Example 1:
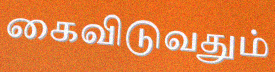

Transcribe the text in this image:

கைவிடுவதும்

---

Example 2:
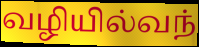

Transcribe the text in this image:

வழியில்வந்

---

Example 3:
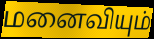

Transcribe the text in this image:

மனைவியும்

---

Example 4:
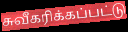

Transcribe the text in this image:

சுவீகரிக்கப்பட்டு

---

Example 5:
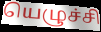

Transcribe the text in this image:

யெழுச்சி